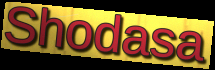
Shodasa